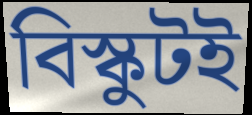
বিস্কুটই